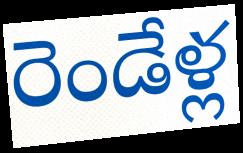
రెండేళ్ల